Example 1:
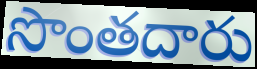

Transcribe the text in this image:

సొంతదారు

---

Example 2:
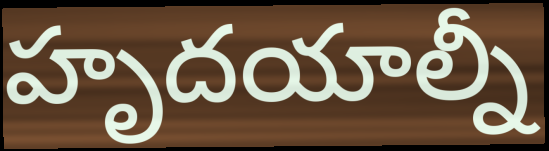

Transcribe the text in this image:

హృదయాల్నీ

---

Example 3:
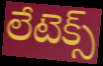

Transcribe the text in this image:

లేటెక్స్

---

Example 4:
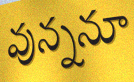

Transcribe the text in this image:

వున్ననూ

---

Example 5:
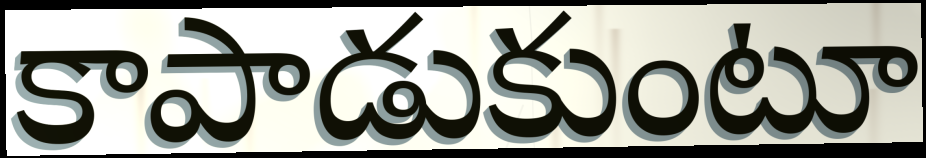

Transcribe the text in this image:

కాపాడుకుంటూ